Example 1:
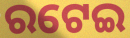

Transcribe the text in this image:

ରଟେଇ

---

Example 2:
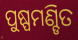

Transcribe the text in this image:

ପୁଷ୍ପମଣ୍ଡିତ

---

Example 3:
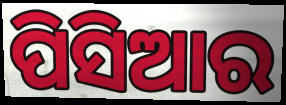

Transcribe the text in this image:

ପିସିଆର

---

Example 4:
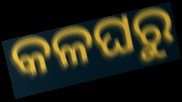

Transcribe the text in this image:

କଳଘରୁ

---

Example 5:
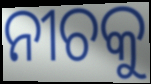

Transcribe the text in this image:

ନୀଚକୁ